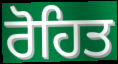
ਰੋਹਿਤ